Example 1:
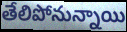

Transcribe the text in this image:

తేలిపోనున్నాయి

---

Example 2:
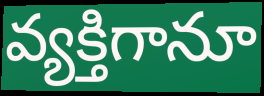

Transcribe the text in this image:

వ్యక్తిగానూ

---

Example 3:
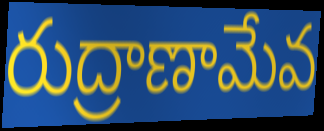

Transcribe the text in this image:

రుద్రాణామేవ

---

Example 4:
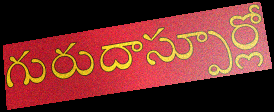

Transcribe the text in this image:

గురుదాస్పూర్లో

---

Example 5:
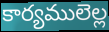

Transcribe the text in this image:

కార్యములెల్ల